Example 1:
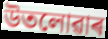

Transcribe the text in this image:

উতলোৱাৰ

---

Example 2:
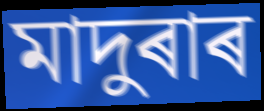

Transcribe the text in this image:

মাদুৰাৰ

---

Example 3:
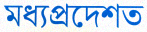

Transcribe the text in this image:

মধ্যপ্ৰদেশত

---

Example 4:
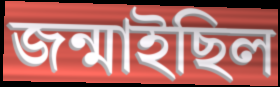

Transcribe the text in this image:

জন্মাইছিল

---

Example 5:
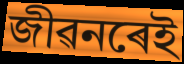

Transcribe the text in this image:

জীৱনৰেই